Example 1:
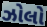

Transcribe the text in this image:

ઝોલો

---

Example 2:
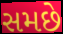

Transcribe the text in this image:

સમછે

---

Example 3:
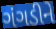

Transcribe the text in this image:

ગંગડીને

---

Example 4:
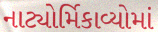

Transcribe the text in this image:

નાટ્યોર્મિકાવ્યોમાં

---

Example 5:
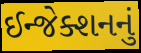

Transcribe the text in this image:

ઈન્જેક્શનનું